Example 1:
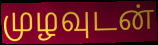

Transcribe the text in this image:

முழவுடன்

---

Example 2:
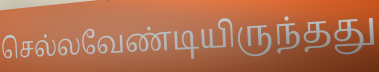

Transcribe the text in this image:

செல்லவேண்டியிருந்தது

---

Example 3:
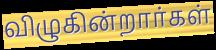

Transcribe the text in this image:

விழுகின்றார்கள்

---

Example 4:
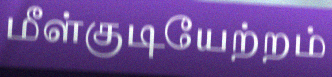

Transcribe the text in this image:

மீள்குடியேற்றம்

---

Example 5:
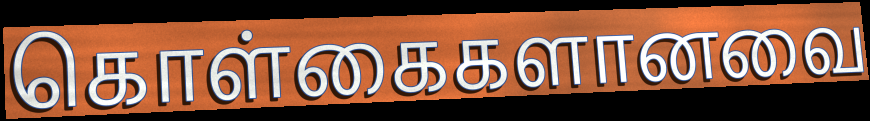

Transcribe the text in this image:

கொள்கைகளானவை